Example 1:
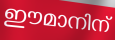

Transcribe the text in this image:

ഈമാനിന്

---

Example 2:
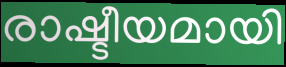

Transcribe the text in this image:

രാഷ്ടീയമായി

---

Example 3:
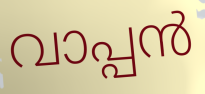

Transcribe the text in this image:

വാപ്പൻ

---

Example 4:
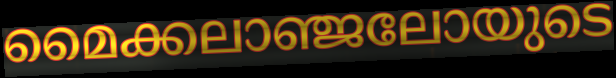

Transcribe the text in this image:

മൈക്കലാഞ്ജലോയുടെ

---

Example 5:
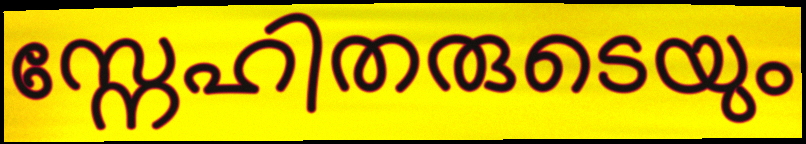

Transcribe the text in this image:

സ്നേഹിതരുടെയും